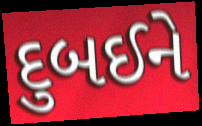
દુબઈને